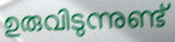
ഉരുവിടുന്നുണ്ട്